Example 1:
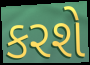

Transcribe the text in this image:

કરશે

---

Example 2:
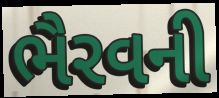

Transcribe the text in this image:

ભૈરવની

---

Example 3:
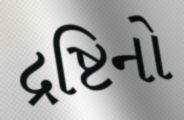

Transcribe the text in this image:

દ્રષ્ટિનો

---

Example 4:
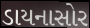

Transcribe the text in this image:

ડાયનાસોર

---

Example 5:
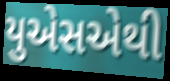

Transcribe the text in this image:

યુએસએથી